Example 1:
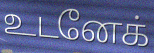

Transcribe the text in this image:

உடனேக்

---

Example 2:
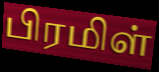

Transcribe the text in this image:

பிரமிள்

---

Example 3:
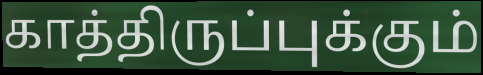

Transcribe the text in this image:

காத்திருப்புக்கும்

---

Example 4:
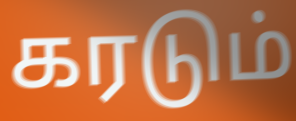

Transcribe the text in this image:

கரடும்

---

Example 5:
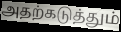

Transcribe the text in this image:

அதற்கடுத்தும்